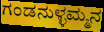
ಗಂಡನುಳ್ಳಮ್ಮನ